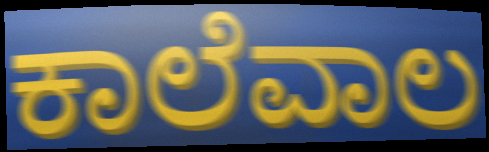
ಕಾಲೆವಾಲ